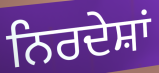
ਨਿਰਦੇਸ਼ਾਂ